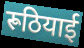
रूठियाई